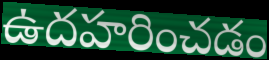
ఉదహరించడం